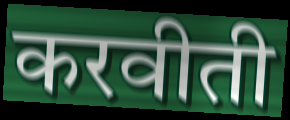
करवीती